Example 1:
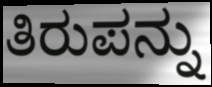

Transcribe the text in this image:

ತಿರುಪನ್ನು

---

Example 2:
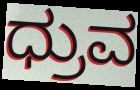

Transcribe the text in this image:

ಧ್ರುವ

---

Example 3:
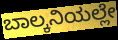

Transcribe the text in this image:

ಬಾಲ್ಕನಿಯಲ್ಲೇ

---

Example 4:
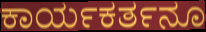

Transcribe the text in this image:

ಕಾರ್ಯಕರ್ತನೂ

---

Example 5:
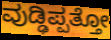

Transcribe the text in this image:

ವುಡ್ಢಿಪ್ಪತ್ತೋ